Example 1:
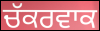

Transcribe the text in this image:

ਚੱਕਰਵਾਕ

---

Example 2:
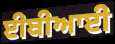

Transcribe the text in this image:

ਈਬੀਆਈ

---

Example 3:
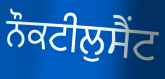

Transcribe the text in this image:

ਨੌਕਟੀਲੁਸੈਂਟ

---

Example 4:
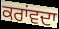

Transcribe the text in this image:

ਕਰਾਂਵਦਾ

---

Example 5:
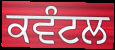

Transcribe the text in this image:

ਕਵੰਟਲ